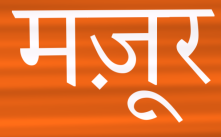
मज़ूर